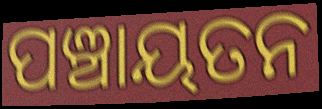
ପଞ୍ଚାୟତନ